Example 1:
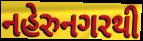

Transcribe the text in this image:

નહેરુનગરથી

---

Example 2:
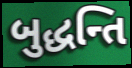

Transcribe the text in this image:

બુદ્ધન્તિ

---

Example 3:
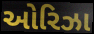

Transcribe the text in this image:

ઓરિઝા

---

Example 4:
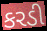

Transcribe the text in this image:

કરડી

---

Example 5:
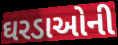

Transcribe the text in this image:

ઘરડાઓની